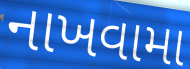
નાખવામા